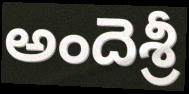
అందెశ్రీ